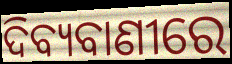
ଦିବ୍ୟବାଣୀରେ